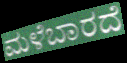
ಮಳೆಬಾರದೆ